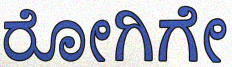
ರೋಗಿಗೇ